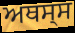
ਅਥਸ੍ਸ